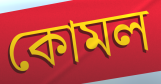
কোমল